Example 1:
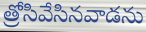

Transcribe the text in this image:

త్రోసివేసినవాడను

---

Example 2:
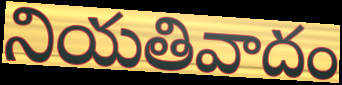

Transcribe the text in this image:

నియతివాదం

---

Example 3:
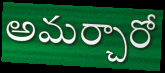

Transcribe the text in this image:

అమర్చారో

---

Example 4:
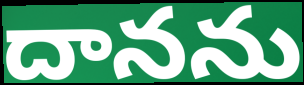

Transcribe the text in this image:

దానను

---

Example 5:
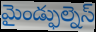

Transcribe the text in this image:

మైండ్ఫుల్నెస్